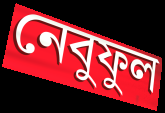
নেবুফুল